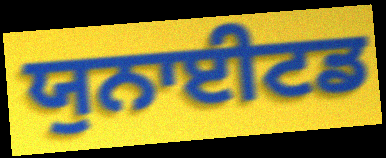
ਯੁਨਾਈਟਡ